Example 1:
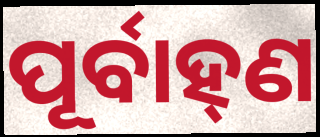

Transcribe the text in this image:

ପୂର୍ବାହ୍‌ଣ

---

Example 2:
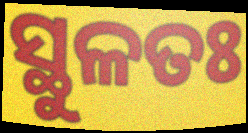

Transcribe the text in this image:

ସ୍ଥୁଳତଃ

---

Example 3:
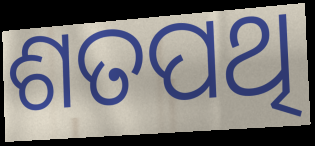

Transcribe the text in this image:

ଶତପଥି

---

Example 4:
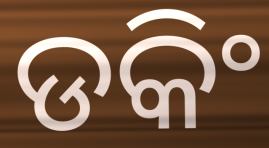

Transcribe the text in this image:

ଡକିଂ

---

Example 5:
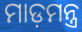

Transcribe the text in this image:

ମାଡ଼ମନ୍ତ୍ର